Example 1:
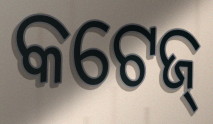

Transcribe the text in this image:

କଟେଜ୍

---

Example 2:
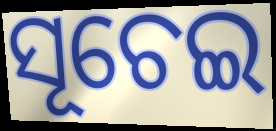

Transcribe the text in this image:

ସୂଚେଇ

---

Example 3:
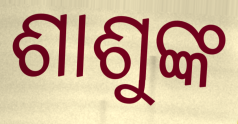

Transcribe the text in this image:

ଶାଶୁଙ୍କ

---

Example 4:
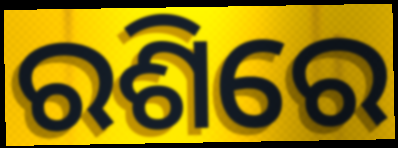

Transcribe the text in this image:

ରଶିରେ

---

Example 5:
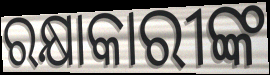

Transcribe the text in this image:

ରକ୍ଷାକାରୀଙ୍କ